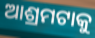
ଆଶ୍ରମଟାକୁ